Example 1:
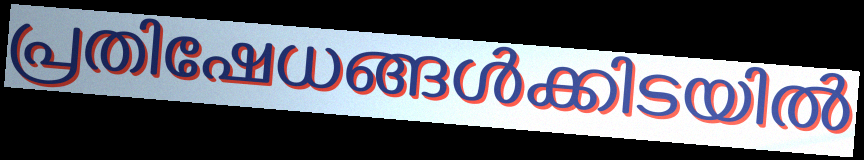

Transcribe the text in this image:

പ്രതിഷേധങ്ങൾക്കിടയിൽ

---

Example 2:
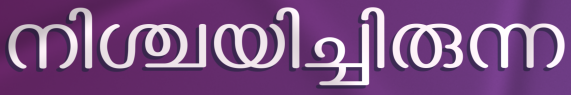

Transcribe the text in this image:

നിശ്ചയിച്ചിരുന്ന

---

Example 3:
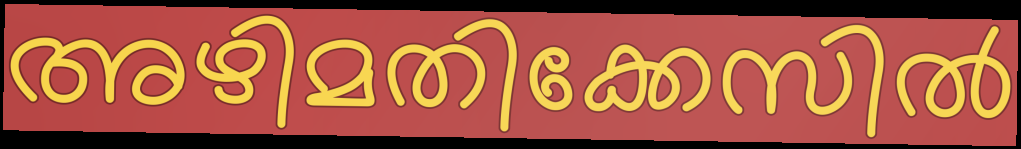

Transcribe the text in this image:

അഴിമതിക്കേസിൽ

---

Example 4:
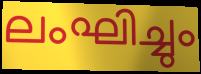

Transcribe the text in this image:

ലംഘിച്ചും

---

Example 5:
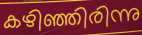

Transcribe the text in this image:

കഴിഞ്ഞിരിന്നു